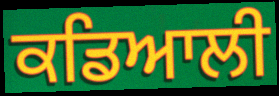
ਕਡਿਆਲੀ